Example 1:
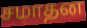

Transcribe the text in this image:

சமாதன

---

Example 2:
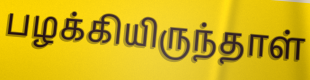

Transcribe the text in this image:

பழக்கியிருந்தாள்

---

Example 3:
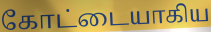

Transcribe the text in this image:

கோட்டையாகிய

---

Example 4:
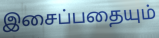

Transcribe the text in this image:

இசைப்பதையும்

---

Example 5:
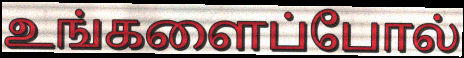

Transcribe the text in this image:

உங்களைப்போல்